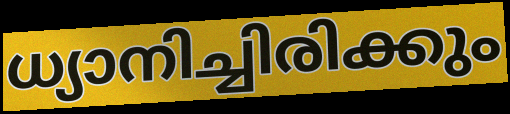
ധ്യാനിച്ചിരിക്കും